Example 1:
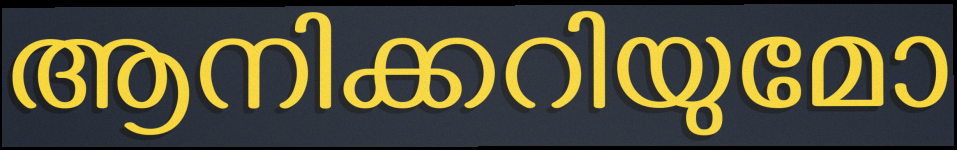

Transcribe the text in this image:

ആനിക്കറിയുമോ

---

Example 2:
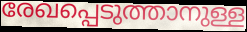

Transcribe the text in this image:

രേഖപ്പെടുത്താനുള്ള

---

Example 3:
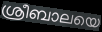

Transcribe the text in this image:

ശ്രീബാലയെ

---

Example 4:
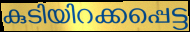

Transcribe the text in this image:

കുടിയിറക്കപ്പെട്ട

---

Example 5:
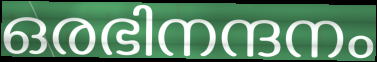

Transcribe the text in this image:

ഒരഭിനന്ദനം